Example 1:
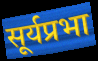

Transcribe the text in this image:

सूर्यप्रभा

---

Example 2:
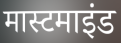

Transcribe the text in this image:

मास्टमाइंड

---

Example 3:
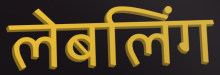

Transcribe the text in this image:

लेबलिंग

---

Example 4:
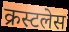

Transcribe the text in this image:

क्रस्टलेस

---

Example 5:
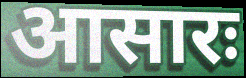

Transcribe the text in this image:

आसारः